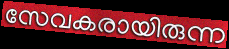
സേവകരായിരുന്ന